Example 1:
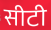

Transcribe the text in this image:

सीटी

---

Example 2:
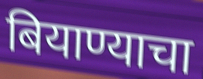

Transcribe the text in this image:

बियाण्याचा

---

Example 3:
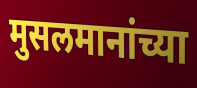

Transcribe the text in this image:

मुसलमानांच्या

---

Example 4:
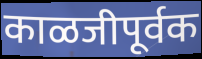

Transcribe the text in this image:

काळजीपूर्वक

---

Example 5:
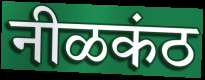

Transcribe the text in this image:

नीळकंठ